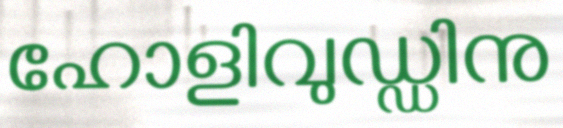
ഹോളിവുഡ്ഡിനു